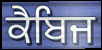
ਕੈਬਿਜ